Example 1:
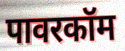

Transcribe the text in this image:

पावरकॉम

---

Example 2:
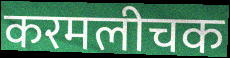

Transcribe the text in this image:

करमलीचक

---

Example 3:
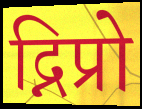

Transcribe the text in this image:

द्निप्रो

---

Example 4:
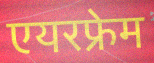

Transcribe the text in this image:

एयरफ्रेम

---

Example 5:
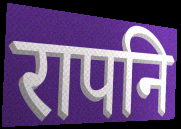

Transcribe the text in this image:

रापनि